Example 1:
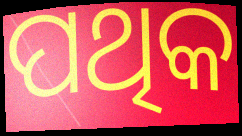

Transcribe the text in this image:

ପଥିକ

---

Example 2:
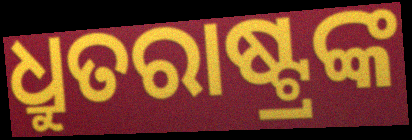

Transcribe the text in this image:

ଧ୍ରୁତରାଷ୍ଟ୍ରଙ୍କ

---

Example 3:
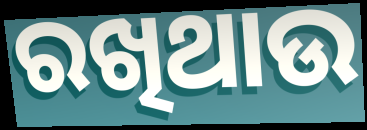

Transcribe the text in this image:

ରଖିଥାଉ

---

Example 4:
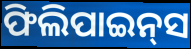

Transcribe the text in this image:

ଫିଲିପାଇନ୍‍ସ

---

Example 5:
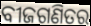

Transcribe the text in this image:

ବୀଜଗଣିତର